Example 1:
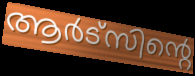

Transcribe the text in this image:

ആർട്സിന്റെ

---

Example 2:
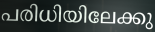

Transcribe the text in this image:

പരിധിയിലേക്കു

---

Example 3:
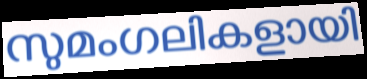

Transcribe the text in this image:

സുമംഗലികളായി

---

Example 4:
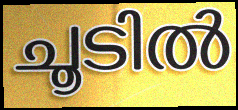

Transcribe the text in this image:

ചൂടിൽ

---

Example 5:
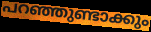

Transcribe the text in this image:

പറഞ്ഞുണ്ടാക്കും